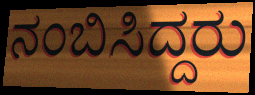
ನಂಬಿಸಿದ್ದರು